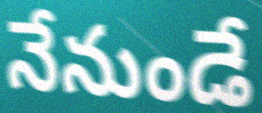
నేనుండే